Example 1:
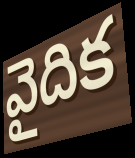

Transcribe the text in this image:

వైదిక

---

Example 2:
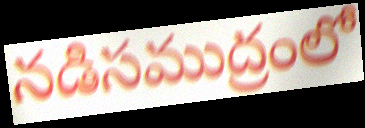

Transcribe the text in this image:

నడిసముద్రంలో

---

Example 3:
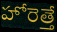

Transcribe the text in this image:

హోరెత్తే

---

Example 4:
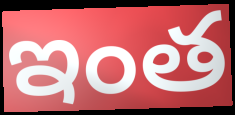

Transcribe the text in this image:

ఇంత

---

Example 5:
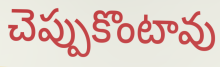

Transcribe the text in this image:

చెప్పుకొంటావు